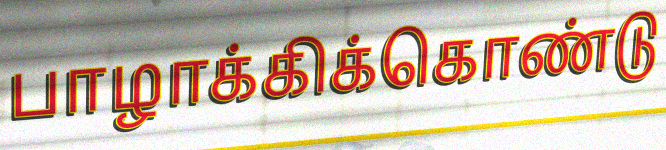
பாழாக்கிக்கொண்டு